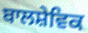
ਬਾਲਸ਼ੇਵਿਕ